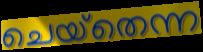
ചെയ്‌തെന്ന